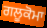
ਗਲੂਕੋਮਾ